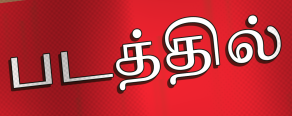
படத்தில்